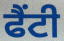
ਫੈਂਟੀ